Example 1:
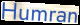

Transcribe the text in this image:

Humran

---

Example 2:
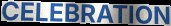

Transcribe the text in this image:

CELEBRATION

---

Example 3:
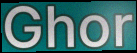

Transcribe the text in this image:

Ghor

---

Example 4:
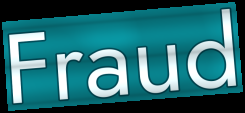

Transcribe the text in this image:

Fraud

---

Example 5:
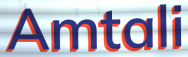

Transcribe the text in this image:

Amtali